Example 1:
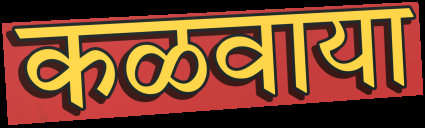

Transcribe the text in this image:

कळवाया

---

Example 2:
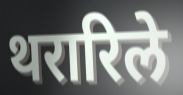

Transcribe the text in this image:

थरारिले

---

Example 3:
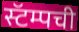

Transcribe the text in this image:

स्टॅम्पची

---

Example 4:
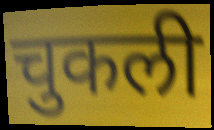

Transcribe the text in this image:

चुकली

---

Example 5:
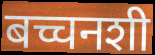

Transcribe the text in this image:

बच्चनशी